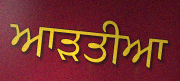
ਆੜਤੀਆ